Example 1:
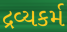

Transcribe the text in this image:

દ્રવ્યકર્મ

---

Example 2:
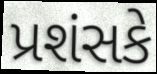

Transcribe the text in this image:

પ્રશંસકે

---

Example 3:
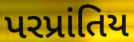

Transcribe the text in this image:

પરપ્રાંતિય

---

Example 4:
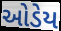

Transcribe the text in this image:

ઓડેય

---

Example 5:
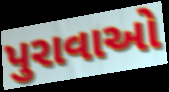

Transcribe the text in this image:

પુરાવાઓ